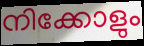
നിക്കോളും